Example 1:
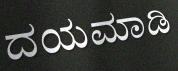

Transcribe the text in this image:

ದಯಮಾಡಿ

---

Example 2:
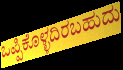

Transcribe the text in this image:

ಒಪ್ಪಿಕೊಳ್ಳದಿರಬಹುದು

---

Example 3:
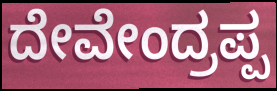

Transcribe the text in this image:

ದೇವೇಂದ್ರಪ್ಪ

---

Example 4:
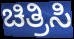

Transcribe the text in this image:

ಚಿತ್ರಿಸಿ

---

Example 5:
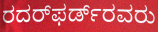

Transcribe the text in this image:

ರದರ್‌ಫರ್ಡ್‌ರವರು